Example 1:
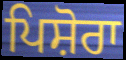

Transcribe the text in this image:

ਪਿਸ਼ੋਰਾ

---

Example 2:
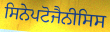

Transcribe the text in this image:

ਸਿਨੇਪਟੋਜੈਨੀਸਿਸ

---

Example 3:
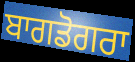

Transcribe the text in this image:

ਬਾਗਡੋਗਰਾ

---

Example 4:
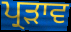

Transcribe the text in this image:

ਪ੍ਰੜਾਵ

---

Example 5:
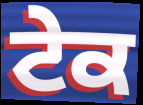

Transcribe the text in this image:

ਟੇਕ